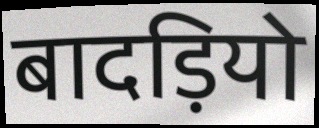
बादड़ियो